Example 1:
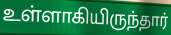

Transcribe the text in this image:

உள்ளாகியிருந்தார்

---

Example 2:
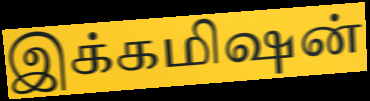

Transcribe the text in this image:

இக்கமிஷன்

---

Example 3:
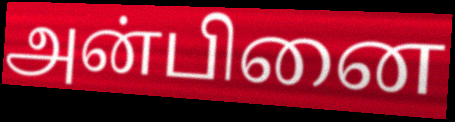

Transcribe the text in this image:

அன்பினை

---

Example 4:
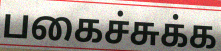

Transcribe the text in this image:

பகைச்சுக்க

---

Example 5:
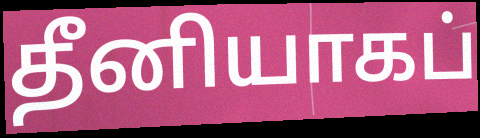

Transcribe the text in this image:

தீனியாகப்